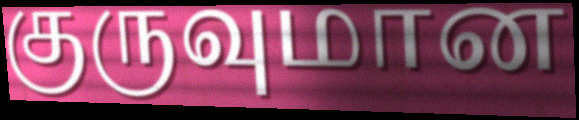
குருவுமான